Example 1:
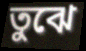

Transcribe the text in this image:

তুঝে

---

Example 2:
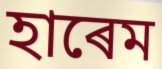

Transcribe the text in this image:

হাৰেম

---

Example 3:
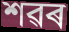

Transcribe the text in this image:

শৱৰ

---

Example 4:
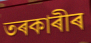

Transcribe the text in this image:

তৰকাৰীৰ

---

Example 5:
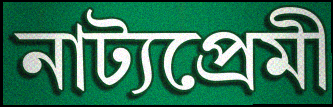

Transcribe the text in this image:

নাট্যপ্ৰেমী